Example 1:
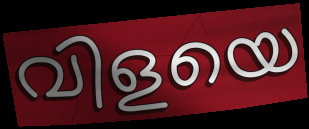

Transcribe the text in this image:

വിളയെ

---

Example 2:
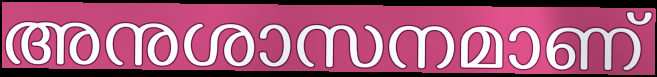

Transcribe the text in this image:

അനുശാസനമാണ്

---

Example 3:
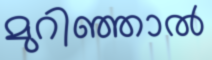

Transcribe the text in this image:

മുറിഞ്ഞാൽ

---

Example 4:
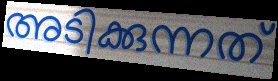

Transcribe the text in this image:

അടിക്കുന്നത്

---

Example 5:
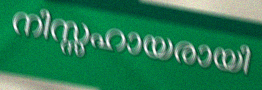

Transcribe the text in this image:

നിസ്സഹായരായി